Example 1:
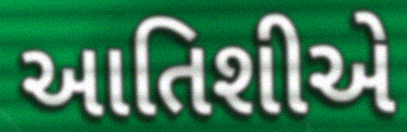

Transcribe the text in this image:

આતિશીએ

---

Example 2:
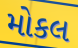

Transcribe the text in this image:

મોકલ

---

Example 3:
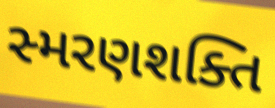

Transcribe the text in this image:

સ્મરણશક્તિ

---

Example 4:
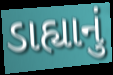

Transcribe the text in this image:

ડાહ્યાનું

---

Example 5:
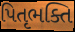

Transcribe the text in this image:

પિતૃભક્તિ